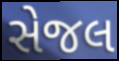
સેજલ